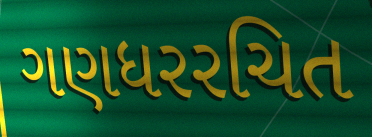
ગણધરરચિત